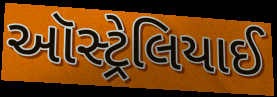
ઑસ્ટ્રેલિયાઈ